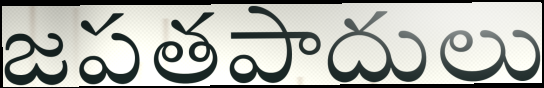
జపతపాదులు